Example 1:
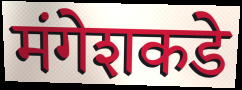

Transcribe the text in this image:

मंगेशकडे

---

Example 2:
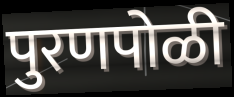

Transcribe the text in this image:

पुरणपोळी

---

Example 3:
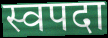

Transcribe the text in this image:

स्वपदा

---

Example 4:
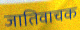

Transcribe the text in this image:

जातिवाचक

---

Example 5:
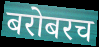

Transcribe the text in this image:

बरोबरच